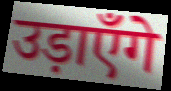
उड़ाएँगे